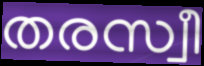
തരസ്വീ